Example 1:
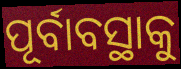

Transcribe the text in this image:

ପୂର୍ବାବସ୍ଥାକୁ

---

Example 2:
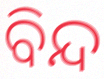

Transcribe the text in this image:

ବିନ୍ଦ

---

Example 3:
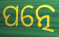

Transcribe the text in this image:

ପତ୍ନେ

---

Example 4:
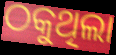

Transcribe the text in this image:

ଠକୁଥିଲା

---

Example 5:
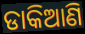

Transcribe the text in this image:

ଡାକିଆଣି